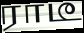
ராடீ